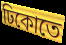
ঢিকোতে